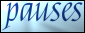
pauses